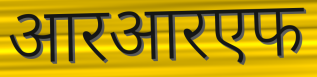
आरआरएफ